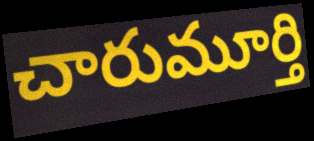
చారుమూర్తి